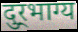
दुर्भाग्य